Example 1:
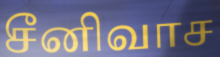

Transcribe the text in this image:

சீனிவாச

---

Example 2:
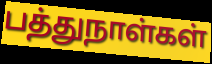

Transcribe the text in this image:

பத்துநாள்கள்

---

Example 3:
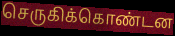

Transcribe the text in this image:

செருகிக்கொண்டன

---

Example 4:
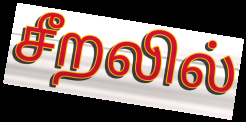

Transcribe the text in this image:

சீறலில்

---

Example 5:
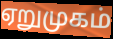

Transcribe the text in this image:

ஏறுமுகம்